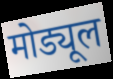
मोड्यूल